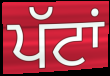
ਪੱਟਾਂ